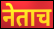
नेताच